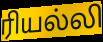
ரியல்லி